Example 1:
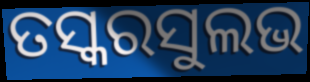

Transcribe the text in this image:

ତସ୍କରସୁଲଭ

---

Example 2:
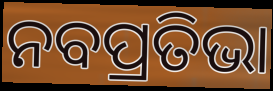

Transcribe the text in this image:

ନବପ୍ରତିଭା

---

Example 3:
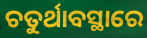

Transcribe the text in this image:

ଚତୁର୍ଥାବସ୍ଥାରେ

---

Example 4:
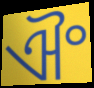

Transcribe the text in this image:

ଐଂ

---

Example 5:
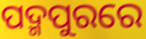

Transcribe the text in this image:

ପଦ୍ମପୁରରେ